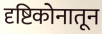
दृष्टिकोनातून